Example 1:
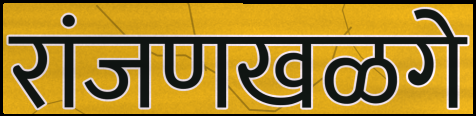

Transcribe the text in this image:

रांजणखळगे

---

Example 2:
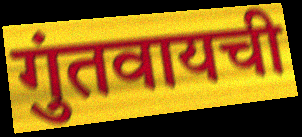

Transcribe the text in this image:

गुंतवायची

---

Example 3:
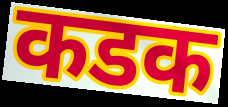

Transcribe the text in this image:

कडक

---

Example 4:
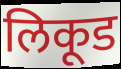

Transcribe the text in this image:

लिकूड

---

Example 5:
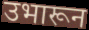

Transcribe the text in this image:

उभारून